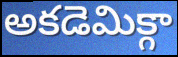
అకడెమిక్గా